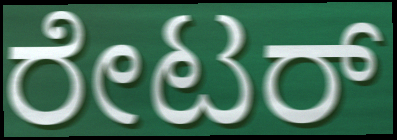
ರೇಟರ್